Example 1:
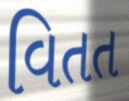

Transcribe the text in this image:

વિતત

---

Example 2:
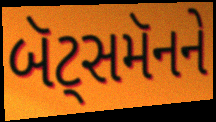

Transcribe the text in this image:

બૅટ્સમૅનને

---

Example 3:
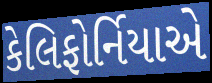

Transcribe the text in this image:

કેલિફોર્નિયાએ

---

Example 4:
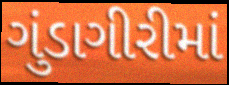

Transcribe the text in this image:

ગુંડાગીરીમાં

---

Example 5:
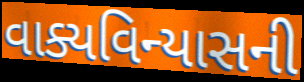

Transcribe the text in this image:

વાક્યવિન્યાસની